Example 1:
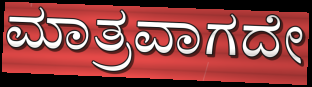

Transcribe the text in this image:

ಮಾತ್ರವಾಗದೇ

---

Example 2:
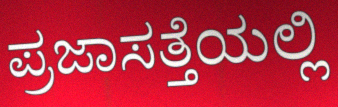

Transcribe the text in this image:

ಪ್ರಜಾಸತ್ತೆಯಲ್ಲಿ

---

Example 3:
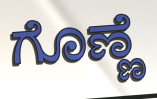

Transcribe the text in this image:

ಗೊಣ್ಣೆ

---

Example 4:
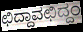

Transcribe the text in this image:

ಛಿದ್ದಾವಛಿದ್ದಂ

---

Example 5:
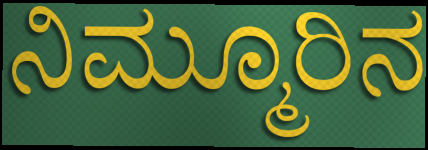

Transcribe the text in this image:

ನಿಮ್ಮೂರಿನ